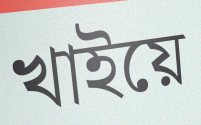
খাইয়ে